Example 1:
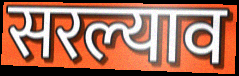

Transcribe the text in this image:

सरल्याव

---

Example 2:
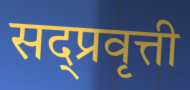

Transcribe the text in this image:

सद्प्रवृत्ती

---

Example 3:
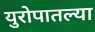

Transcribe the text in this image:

युरोपातल्या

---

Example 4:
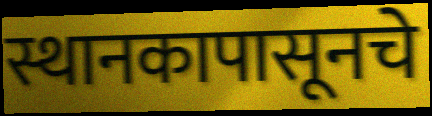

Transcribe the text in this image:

स्थानकापासूनचे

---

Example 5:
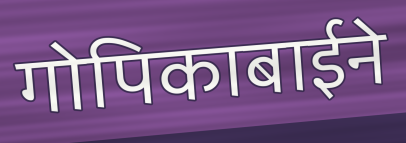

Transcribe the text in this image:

गोपिकाबाईने